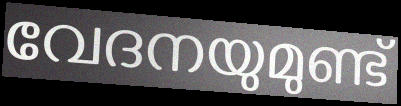
വേദനയുമുണ്ട്